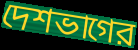
দেশভাগের